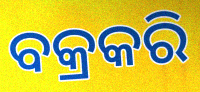
ବକ୍ରକରି